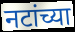
नटांच्या